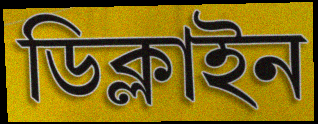
ডিক্লাইন